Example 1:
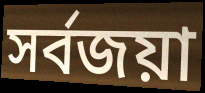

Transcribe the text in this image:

সর্বজয়া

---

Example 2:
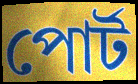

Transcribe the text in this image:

পোর্ট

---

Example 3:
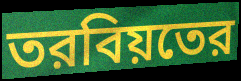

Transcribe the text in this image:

তরবিয়তের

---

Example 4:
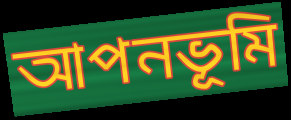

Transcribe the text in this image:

আপনভূমি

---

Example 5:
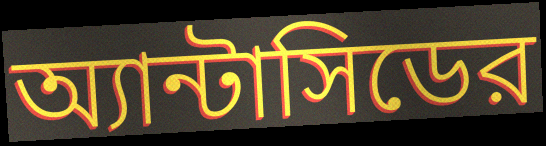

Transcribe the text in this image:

অ্যান্টাসিডের